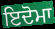
ਇਦੋਮਾ